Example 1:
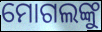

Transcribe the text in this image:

ମୋଗଲଙ୍କୁ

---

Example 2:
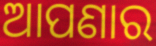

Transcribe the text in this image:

ଆପଣାର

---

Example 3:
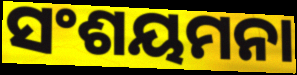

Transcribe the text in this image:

ସଂଶୟମନା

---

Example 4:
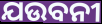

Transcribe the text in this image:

ଯଉବନୀ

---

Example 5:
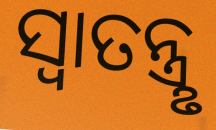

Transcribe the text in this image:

ସ୍ବାତନ୍ତ୍ରୢ